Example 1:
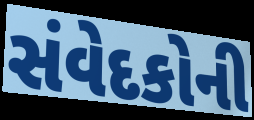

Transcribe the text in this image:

સંવેદકોની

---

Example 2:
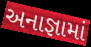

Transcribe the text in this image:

અનાજ્ઞામાં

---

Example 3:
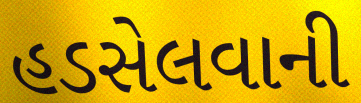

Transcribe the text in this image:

હડસેલવાની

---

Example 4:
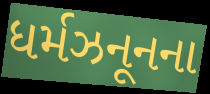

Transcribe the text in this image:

ધર્મઝનૂનના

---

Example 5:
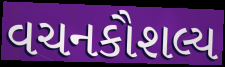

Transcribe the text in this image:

વચનકૌશલ્ય